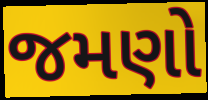
જમણો